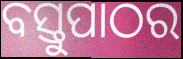
ବସ୍ତୁପାଠର